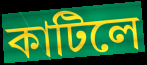
কাটিলে